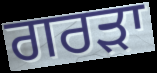
ਗਰੜਾ